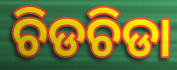
ଚିଡଚିଡା